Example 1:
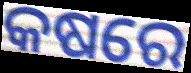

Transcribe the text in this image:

କଷରେ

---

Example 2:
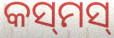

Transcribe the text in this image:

କସ୍‌ମସ୍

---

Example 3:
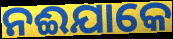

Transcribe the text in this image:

ନଈଯାକେ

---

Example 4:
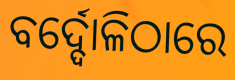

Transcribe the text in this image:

ବର୍ଦ୍ଦୋଳିଠାରେ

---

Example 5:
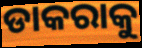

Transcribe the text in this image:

ଡାକରାକୁ